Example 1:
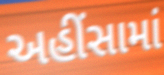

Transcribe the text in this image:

અહીંસામાં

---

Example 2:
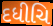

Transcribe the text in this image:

દધીચિ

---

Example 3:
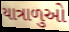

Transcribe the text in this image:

યાત્રાળુઓ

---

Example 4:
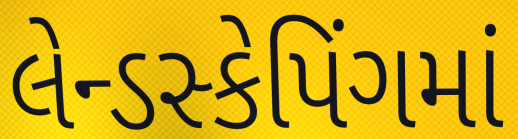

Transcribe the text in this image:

લેન્ડસ્કેપિંગમાં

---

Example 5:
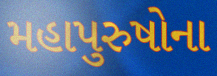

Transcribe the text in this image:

મહાપુરુષોના